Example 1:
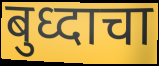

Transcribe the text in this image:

बुध्दाचा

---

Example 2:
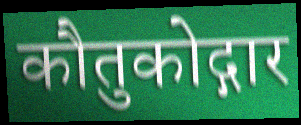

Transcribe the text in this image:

कौतुकोद्गार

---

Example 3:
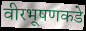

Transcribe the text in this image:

वीरभूषणकडे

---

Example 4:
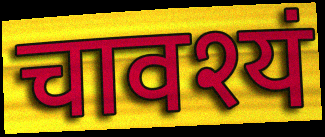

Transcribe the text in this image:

चावश्यं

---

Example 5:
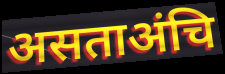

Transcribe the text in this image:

असताअंचि